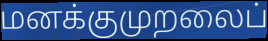
மனக்குமுறலைப்